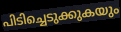
പിടിച്ചെടുക്കുകയും